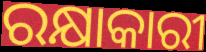
ରକ୍ଷାକାରୀ